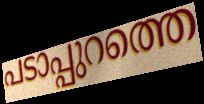
പടാപ്പുറത്തെ